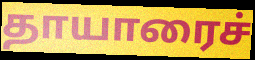
தாயாரைச்